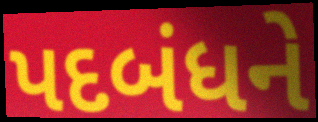
પદબંધને